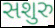
સશુરુ